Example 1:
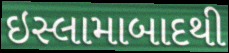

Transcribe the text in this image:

ઇસ્લામાબાદથી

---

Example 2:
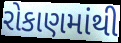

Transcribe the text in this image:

રોકાણમાંથી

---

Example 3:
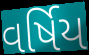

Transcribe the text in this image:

વર્ષિય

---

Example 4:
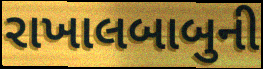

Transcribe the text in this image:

રાખાલબાબુની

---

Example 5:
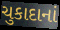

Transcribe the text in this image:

ચુકાદાનાં